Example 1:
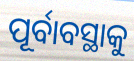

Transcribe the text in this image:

ପୂର୍ବାବସ୍ଥାକୁ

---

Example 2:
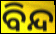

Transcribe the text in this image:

ବିନ୍ଦ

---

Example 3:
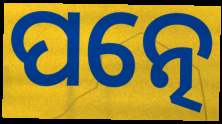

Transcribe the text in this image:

ପତ୍ନେ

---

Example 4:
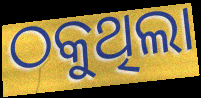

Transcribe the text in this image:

ଠକୁଥିଲା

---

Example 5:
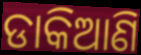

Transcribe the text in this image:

ଡାକିଆଣି